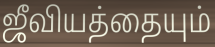
ஜீவியத்தையும்